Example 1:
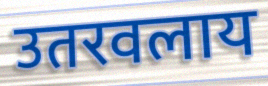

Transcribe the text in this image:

उतरवलाय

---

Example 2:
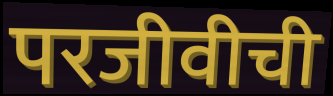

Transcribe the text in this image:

परजीवीची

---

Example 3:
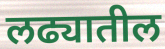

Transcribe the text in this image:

लढ्यातील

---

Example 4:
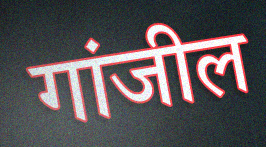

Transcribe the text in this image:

गांजील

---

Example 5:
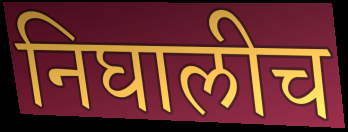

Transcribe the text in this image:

निघालीच